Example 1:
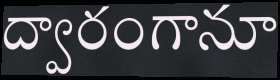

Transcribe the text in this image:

ద్వారంగానూ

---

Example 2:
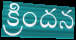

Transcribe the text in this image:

క్రిందన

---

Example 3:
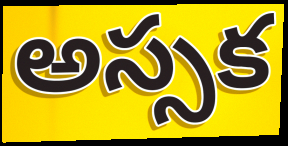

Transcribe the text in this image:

అస్సక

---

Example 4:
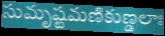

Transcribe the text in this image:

సుమృష్టమణికుణ్డలాః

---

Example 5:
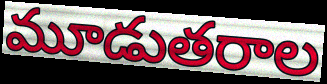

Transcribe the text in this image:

మూడుతరాల